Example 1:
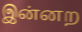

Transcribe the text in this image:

இன்னற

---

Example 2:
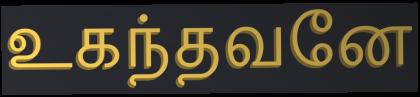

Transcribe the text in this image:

உகந்தவனே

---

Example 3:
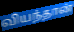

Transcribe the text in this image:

வியந்தான்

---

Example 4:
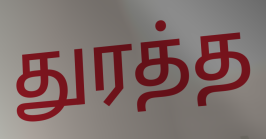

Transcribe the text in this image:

துரத்த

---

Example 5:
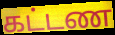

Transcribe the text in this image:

கட்டண